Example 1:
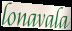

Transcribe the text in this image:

lonavala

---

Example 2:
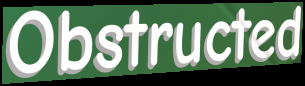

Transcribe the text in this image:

Obstructed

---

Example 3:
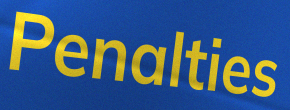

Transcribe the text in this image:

Penalties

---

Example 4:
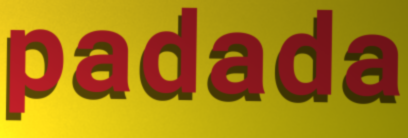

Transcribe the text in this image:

padada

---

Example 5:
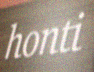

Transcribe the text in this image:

honti